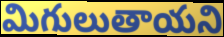
మిగులుతాయని